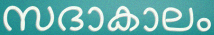
സദാകാലം